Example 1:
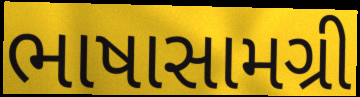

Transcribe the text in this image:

ભાષાસામગ્રી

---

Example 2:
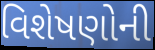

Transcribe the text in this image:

વિશેષણોની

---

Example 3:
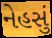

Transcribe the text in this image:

નેહસું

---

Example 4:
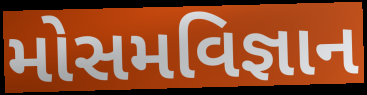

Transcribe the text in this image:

મોસમવિજ્ઞાન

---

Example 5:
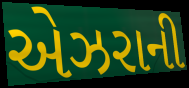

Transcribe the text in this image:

એઝરાની